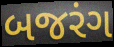
બજરંગ